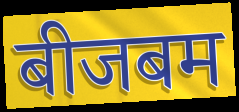
बीजबम